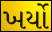
ખર્યો